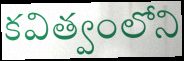
కవిత్వంలోని